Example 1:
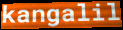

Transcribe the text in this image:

kangalil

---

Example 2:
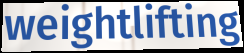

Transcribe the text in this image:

weightlifting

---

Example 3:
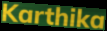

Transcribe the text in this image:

Karthika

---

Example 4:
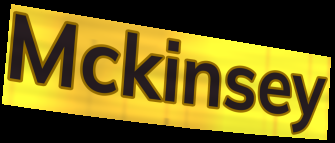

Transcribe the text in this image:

Mckinsey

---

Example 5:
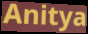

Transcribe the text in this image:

Anitya